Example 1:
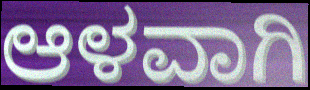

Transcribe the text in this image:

ಆಳವಾಗಿ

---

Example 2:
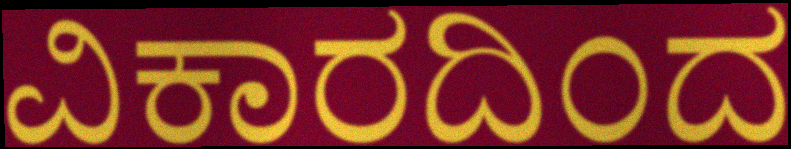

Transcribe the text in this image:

ವಿಕಾರದಿಂದ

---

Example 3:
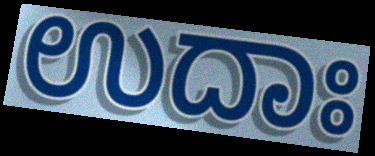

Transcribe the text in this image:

ಉದಾಃ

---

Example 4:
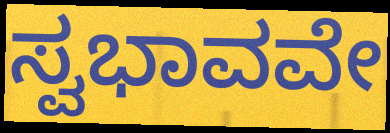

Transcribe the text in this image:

ಸ್ವಭಾವವೇ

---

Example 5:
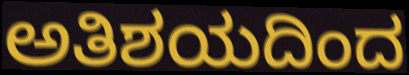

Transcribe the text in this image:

ಅತಿಶಯದಿಂದ